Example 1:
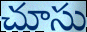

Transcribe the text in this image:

చూసు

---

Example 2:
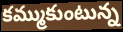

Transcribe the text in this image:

కమ్ముకుంటున్న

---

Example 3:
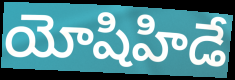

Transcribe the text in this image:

యోషిహిడే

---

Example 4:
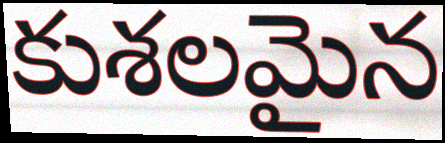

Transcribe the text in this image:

కుశలమైన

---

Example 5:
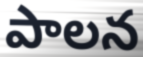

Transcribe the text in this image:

పాలన